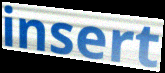
insert